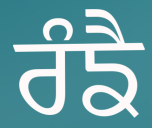
ਰੰਙੈ